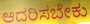
ಆದರಿಸಬೇಕು